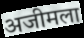
अजीमला